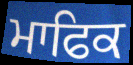
ਮਾਫਿਕ